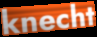
knecht